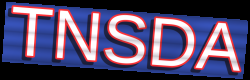
TNSDA